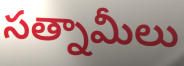
సత్నామీలు